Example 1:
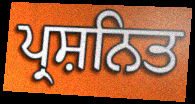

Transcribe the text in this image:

ਪ੍ਰਸ਼ਨਿਤ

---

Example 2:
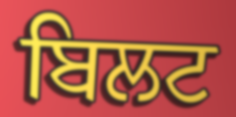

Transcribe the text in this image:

ਬਿਲਟ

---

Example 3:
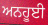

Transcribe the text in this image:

ਅਨਹੂਈ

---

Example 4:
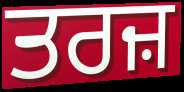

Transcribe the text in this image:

ਤਰਜ਼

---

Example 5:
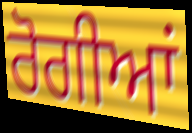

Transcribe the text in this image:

ਰੋਗੀਆਂ